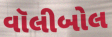
વૉલીબોલ